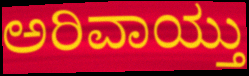
ಅರಿವಾಯ್ತು